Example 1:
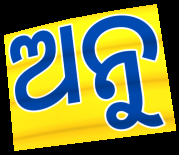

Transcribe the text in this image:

ଅନୁ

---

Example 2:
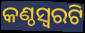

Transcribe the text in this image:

କଣ୍ଠସ୍ଵରଟି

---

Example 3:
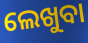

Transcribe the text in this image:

ଲେଖୁବା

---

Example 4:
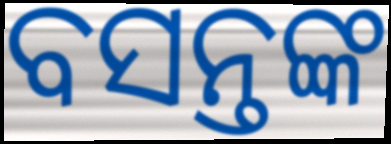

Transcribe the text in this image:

ବସନ୍ତଙ୍କ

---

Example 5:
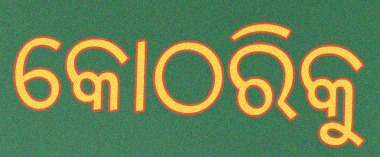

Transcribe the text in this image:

କୋଠରିକୁ